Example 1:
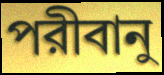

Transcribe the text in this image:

পরীবানু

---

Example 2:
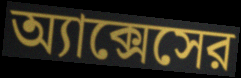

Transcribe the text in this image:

অ্যাক্সেসের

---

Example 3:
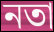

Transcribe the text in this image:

নতা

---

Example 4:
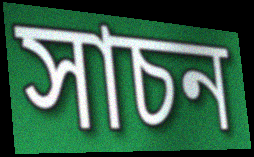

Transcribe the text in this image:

সাচন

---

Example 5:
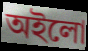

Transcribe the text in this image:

অইলো